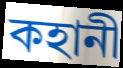
কহানী